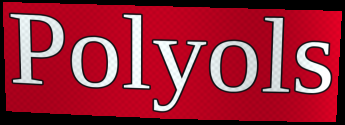
Polyols